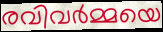
രവിവർമ്മയെ